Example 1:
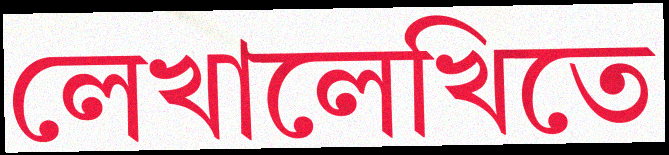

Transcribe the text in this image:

লেখালেখিতে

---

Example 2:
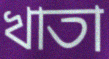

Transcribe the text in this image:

খাতা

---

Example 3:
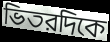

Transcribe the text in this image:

ভিতরদিকে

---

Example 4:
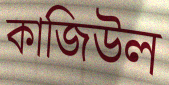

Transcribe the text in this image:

কাজিউল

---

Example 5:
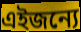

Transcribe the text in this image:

এইজন্যে